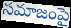
సమాజంపై